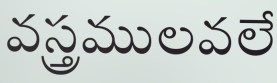
వస్త్రములవలే